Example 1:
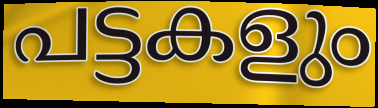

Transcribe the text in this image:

പട്ടകളും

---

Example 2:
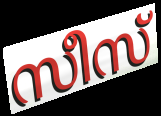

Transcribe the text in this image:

സീസ്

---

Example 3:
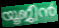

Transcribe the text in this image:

യൂജീൻ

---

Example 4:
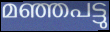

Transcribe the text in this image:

മഞ്ഞപട്ടു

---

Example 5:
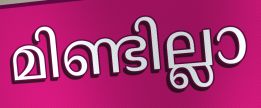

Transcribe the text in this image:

മിണ്ടില്ലാ